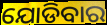
ଯୋଡିବାର